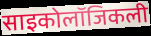
साइकोलॉजिकली